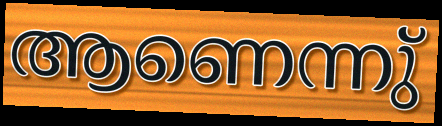
ആണെന്നു്